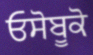
ਓਸੋਬੂਕੋ